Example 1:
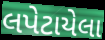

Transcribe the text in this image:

લપેટાયેલા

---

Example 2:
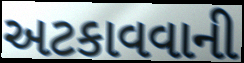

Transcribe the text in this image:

અટકાવવાની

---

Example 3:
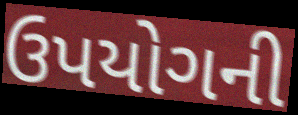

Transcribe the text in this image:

ઉપયોગની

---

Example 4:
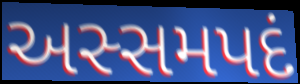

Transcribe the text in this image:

અસ્સમપદં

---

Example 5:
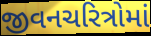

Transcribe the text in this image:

જીવનચરિત્રોમાં